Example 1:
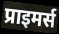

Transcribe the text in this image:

प्राइमर्स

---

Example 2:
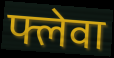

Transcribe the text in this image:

फ्लेवा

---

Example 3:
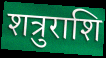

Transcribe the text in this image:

शत्रुराशि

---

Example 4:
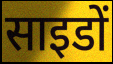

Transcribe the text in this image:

साइडों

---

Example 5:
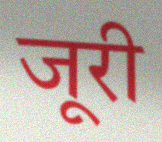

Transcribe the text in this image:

जूरी